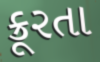
ક્રૂરતા